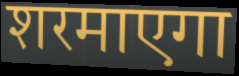
शरमाएगा